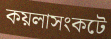
কয়লাসংকটে